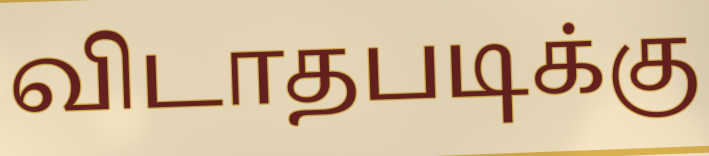
விடாதபடிக்கு